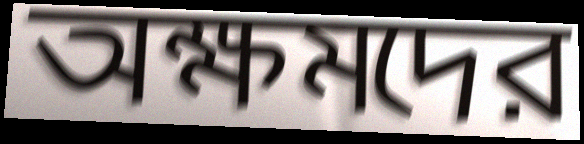
অক্ষমদের